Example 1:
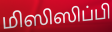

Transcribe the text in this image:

மிஸிஸிப்பி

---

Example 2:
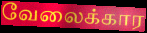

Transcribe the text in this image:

வேலைக்கார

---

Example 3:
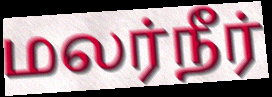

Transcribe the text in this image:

மலர்நீர்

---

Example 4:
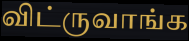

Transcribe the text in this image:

விட்ருவாங்க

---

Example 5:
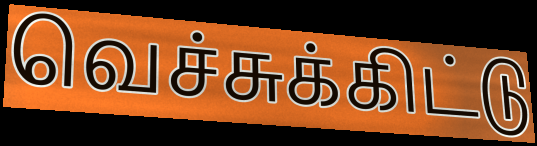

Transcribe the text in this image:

வெச்சுக்கிட்டு